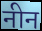
नीन